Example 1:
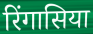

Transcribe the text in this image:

रिंगासिया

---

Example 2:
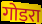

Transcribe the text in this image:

गोडरा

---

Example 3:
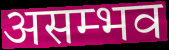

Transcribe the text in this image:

असम्भव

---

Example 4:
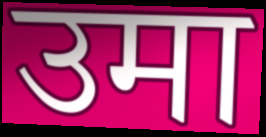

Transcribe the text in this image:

उमा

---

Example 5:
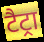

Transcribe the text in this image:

टैट्रा